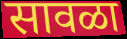
सावळा